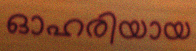
ഓഹരിയായ